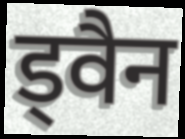
ड्वैन